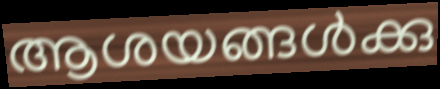
ആശയങ്ങൾക്കു